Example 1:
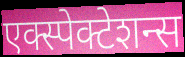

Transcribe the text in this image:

एक्स्पेक्टेशन्स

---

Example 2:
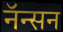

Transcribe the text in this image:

नॅन्सन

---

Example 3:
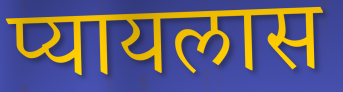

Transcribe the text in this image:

प्यायलास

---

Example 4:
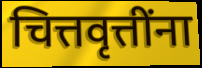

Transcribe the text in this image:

चित्तवृत्तींना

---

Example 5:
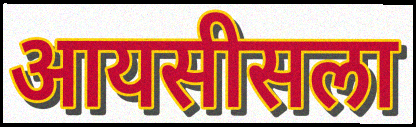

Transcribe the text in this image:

आयसीसला